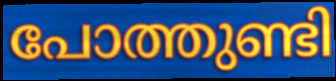
പോത്തുണ്ടി